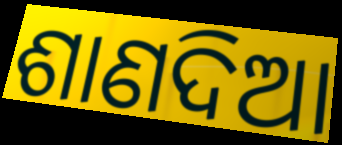
ଶାଣଦିଆ